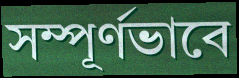
সম্পূৰ্ণভাবে